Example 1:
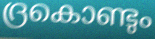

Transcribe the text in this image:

ദ്രകൊണ്ടും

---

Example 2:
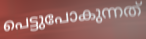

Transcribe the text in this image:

പെട്ടുപോകുന്നത്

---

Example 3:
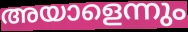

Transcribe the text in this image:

അയാളെന്നും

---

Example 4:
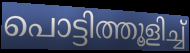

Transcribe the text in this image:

പൊട്ടിത്തൂളിച്ച്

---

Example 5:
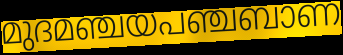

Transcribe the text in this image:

മുദമഞ്ചയപഞ്ചബാണ